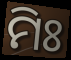
ମିଃ